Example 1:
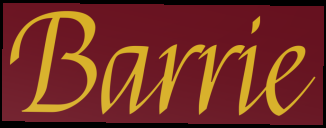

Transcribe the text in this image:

Barrie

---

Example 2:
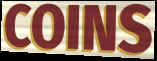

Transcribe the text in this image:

COINS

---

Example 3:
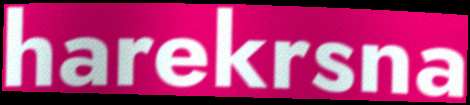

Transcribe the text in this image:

harekrsna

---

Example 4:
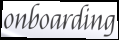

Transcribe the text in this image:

onboarding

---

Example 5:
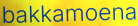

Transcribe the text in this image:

bakkamoena